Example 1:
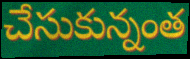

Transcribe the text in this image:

చేసుకున్నంత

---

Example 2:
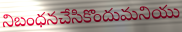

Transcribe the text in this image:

నిబంధనచేసికొందుమనియు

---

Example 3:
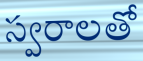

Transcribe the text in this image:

స్వరాలతో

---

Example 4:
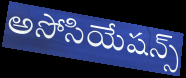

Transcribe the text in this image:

అసోసియేషన్స్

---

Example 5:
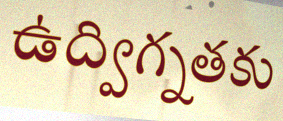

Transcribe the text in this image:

ఉద్విగ్నతకు